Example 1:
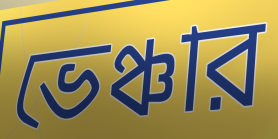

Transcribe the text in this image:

ভেঞ্চার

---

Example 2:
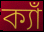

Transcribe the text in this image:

ক্যাঁ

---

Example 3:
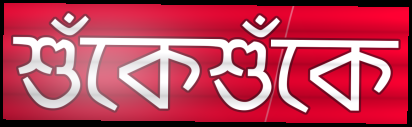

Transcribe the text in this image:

শুঁকেশুঁকে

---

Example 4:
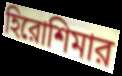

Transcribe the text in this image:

হিরোশিমার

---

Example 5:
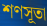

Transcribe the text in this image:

শণসূতা